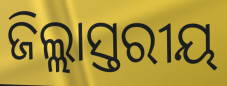
ଜିଲ୍ଲାସ୍ତରୀୟ